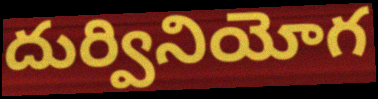
దుర్వినియోగ